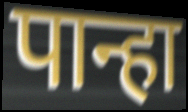
पान्हा